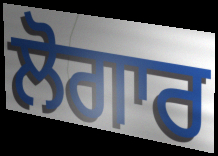
ਲੋਗਾਰ